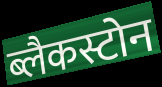
ब्लैकस्टोन